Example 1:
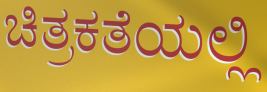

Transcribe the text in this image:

ಚಿತ್ರಕತೆಯಲ್ಲಿ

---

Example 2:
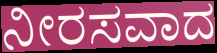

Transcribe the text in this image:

ನೀರಸವಾದ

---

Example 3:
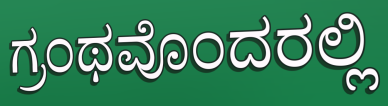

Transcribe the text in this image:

ಗ್ರಂಥವೊಂದರಲ್ಲಿ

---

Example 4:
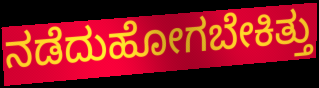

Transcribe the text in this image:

ನಡೆದುಹೋಗಬೇಕಿತ್ತು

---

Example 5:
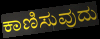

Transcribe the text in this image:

ಕಾಣಿಸುವುದು